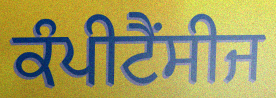
ਕੰਪੀਟੈਂਸੀਜ